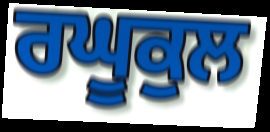
ਰਘੂਕੁਲ